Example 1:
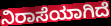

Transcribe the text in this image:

ನಿರಾಸೆಯಾಗಿದೆ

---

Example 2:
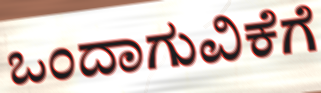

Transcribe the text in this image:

ಒಂದಾಗುವಿಕೆಗೆ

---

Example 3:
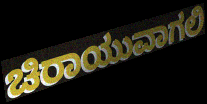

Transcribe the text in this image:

ಚಿರಾಯುವಾಗಲಿ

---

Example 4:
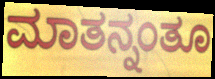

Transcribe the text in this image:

ಮಾತನ್ನಂತೂ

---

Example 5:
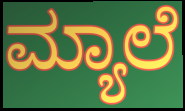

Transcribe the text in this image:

ಮ್ಯಾಲೆ